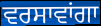
ਵਰਸਾਵਾਂਗਾ